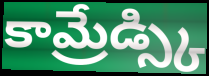
కామ్రేడ్స్కి